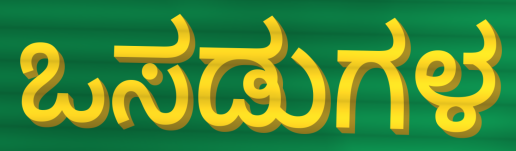
ಒಸಡುಗಳ